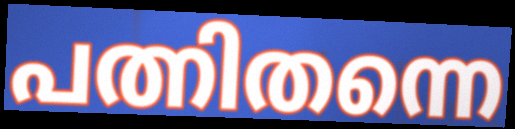
പത്നിതന്നെ